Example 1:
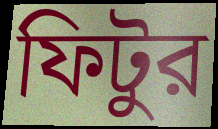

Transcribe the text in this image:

ফিটুর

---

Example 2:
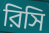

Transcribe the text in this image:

রিসি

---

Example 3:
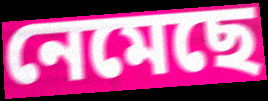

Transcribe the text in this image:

নেমেছে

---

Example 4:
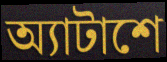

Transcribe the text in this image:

অ্যাটাশে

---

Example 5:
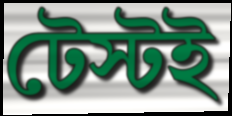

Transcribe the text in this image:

টেস্টই